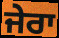
ਜੇਰਾ